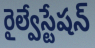
రైల్వేస్టేషన్